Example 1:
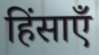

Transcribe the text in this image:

हिंसाएँ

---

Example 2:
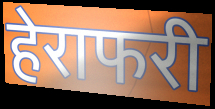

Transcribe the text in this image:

हेराफरी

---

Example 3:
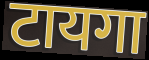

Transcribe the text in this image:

टायगा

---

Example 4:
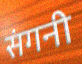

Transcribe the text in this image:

संगनी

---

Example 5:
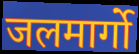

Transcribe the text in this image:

जलमार्गो